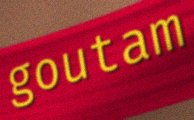
goutam